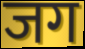
जग